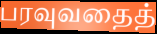
பரவுவதைத்